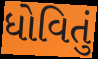
ધોવિતું